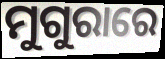
ମୁଗୁରାରେ